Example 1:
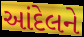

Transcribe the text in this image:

આંદેલને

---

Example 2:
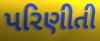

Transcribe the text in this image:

પરિણીતી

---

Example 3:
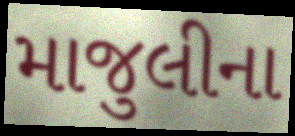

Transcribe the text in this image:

માજુલીના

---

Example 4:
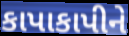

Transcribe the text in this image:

કાપાકાપીને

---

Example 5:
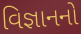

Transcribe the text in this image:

વિજ્ઞાનનો